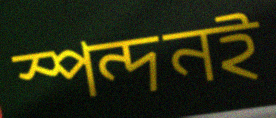
স্পন্দনই